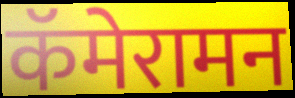
कॅमेरामन